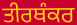
ਤੀਰਥੰਕਰ